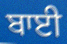
ਬਾਈ